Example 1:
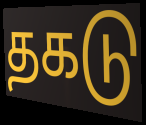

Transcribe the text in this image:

தகடு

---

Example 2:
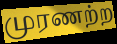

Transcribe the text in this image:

முரணற்ற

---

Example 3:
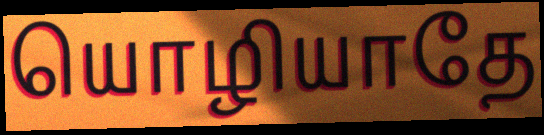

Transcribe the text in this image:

யொழியாதே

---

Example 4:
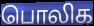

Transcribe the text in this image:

பொலிக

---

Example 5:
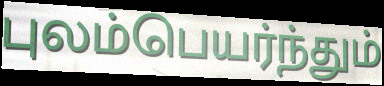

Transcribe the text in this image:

புலம்பெயர்ந்தும்